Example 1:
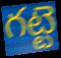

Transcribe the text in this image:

గట్టె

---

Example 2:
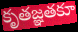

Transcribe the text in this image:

కృతజ్ఞతకూ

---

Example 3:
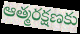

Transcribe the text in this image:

ఆత్మరక్షణకు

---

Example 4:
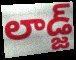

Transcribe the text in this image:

లాడ్జ్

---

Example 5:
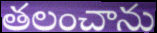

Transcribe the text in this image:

తలంచాను